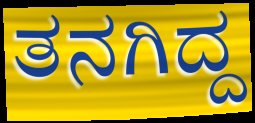
ತನಗಿದ್ದ